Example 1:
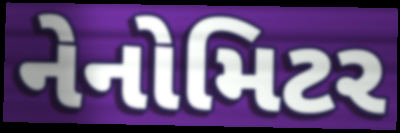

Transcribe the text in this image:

નેનોમિટર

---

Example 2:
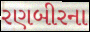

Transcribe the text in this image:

રણબીરના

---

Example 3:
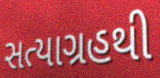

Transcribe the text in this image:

સત્યાગ્રહથી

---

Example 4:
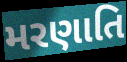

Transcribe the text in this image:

મરણાતિ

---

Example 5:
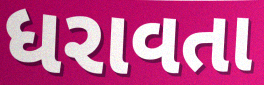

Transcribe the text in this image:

ધરાવતા